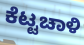
ಕೆಟ್ಟಚಾಳಿ